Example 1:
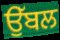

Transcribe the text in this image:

ਉੱਬਲ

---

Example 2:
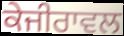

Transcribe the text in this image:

ਕੇਜੀਰਾਵਲ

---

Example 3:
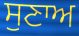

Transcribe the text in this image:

ਸੁਣਾਅ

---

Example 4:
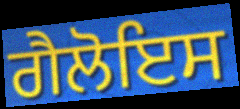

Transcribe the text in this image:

ਗੈਲੋਇਸ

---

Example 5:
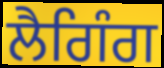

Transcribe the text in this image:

ਲੈਗਿੰਗ